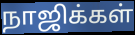
நாஜிக்கள்